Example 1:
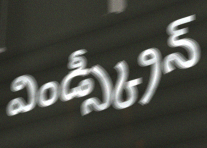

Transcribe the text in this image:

విండ్స్క్రీన్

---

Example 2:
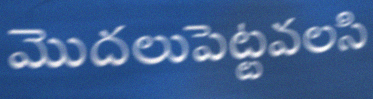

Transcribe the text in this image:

మొదలుపెట్టవలసి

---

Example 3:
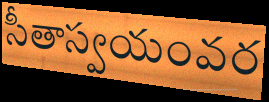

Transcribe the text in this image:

సీతాస్వయంవర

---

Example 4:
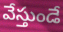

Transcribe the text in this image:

వేస్తుండే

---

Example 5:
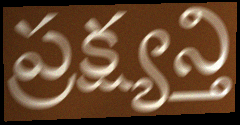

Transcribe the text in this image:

ప్రక్ష్యన్తి